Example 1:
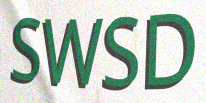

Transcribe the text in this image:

SWSD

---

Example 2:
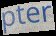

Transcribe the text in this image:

pter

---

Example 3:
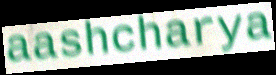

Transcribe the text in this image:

aashcharya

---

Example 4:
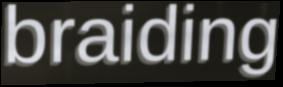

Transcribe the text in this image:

braiding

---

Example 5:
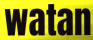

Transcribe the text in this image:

watan